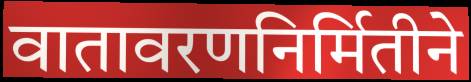
वातावरणनिर्मितीने